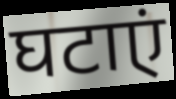
घटाएं